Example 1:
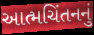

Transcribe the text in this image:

આત્મચિંતનનું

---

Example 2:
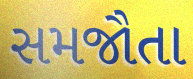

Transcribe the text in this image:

સમજૌતા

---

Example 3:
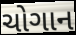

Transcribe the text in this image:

ચોગાન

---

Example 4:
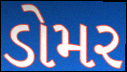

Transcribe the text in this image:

ડોમર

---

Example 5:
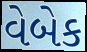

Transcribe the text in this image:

વેબેક